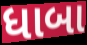
ધાબા